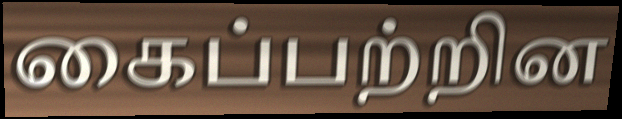
கைப்பற்றின